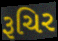
રૂચિર